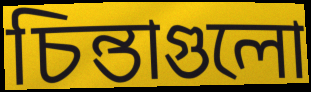
চিন্তাগুলো